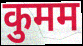
कुमम